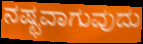
ನಷ್ಟವಾಗುವುದು